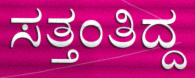
ಸತ್ತಂತಿದ್ದ